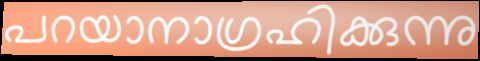
പറയാനാഗ്രഹിക്കുന്നു